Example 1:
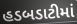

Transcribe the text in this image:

હડબડાટીમાં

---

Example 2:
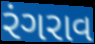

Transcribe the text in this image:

રંગરાવ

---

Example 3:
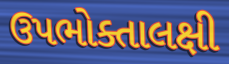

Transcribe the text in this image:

ઉપભોક્તાલક્ષી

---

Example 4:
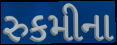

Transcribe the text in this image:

રુકમીના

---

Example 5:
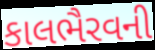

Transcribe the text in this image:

કાલભૈરવની